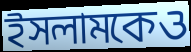
ইসলামকেও